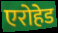
एरोहेड